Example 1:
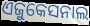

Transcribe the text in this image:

ଏଜୁକେସନାଲ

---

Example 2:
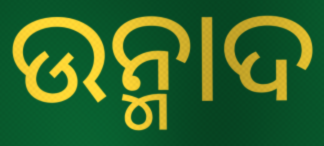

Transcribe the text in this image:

ଉନ୍ମାଦ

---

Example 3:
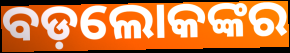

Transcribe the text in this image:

ବଡ଼ଲୋକଙ୍କର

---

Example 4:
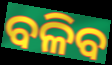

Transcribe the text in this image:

ବଳିବ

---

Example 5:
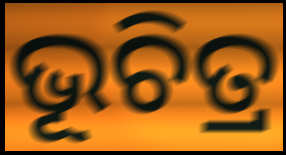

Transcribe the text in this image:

ଭୂଚିତ୍ର